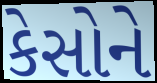
કેસોને